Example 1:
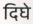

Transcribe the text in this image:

दिघे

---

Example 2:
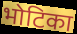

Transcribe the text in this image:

भोटिका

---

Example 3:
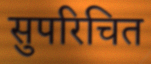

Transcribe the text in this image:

सुपरिचित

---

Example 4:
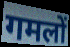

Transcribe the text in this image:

गमलों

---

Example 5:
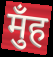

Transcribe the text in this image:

मुँह